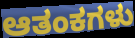
ಆತಂಕಗಳು